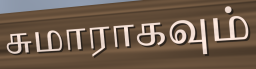
சுமாராகவும்